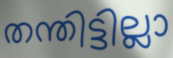
തന്തിട്ടില്ലാ